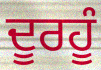
ਦੂਰਹੂੰ